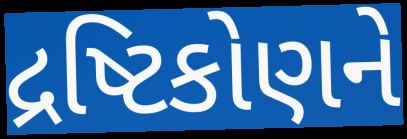
દ્રષ્ટિકોણને